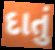
દાતું